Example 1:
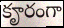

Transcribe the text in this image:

కౄరంగా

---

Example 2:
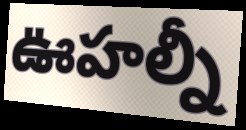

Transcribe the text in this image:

ఊహల్నీ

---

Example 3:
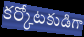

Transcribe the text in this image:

కర్కోటకుడిగా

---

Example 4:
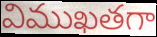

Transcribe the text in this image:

విముఖతగా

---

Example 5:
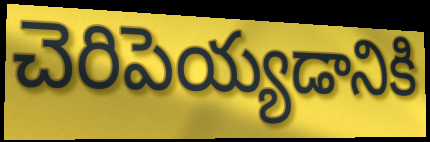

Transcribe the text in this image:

చెరిపెయ్యడానికి